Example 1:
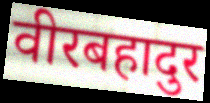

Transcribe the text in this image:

वीरबहादुर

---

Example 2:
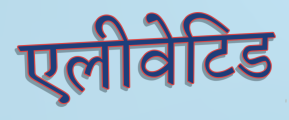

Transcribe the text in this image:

एलीवेटिड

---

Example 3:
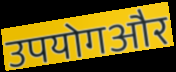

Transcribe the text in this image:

उपयोगऔर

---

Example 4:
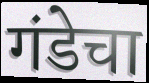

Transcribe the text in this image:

गंडेचा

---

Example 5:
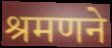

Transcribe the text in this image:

श्रमणने